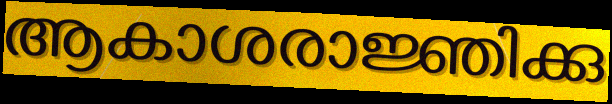
ആകാശരാജ്ഞിക്കു